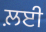
ਲ਼ਈ